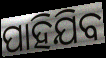
ପାହିଯିବ